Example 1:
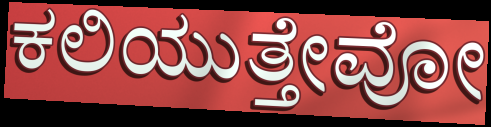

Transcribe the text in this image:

ಕಲಿಯುತ್ತೇವೋ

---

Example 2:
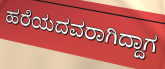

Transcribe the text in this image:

ಹರೆಯದವರಾಗಿದ್ದಾಗ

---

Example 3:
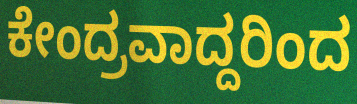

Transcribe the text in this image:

ಕೇಂದ್ರವಾದ್ದರಿಂದ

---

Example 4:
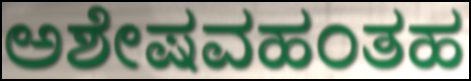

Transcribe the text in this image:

ಅಶೇಷವಹಂತಹ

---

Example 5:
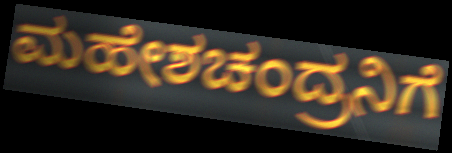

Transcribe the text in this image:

ಮಹೇಶಚಂದ್ರನಿಗೆ